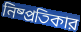
নিষ্প্রতিকার